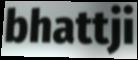
bhattji